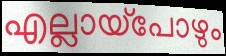
എല്ലായ്പോഴും